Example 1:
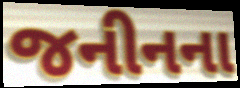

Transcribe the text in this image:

જનીનના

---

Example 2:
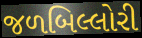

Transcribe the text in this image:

જળબિલ્લોરી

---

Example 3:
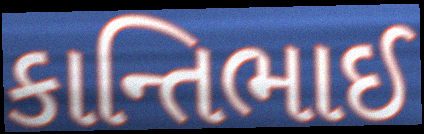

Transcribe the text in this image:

કાન્તિભાઈ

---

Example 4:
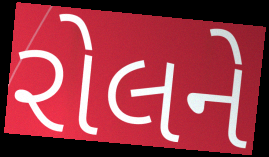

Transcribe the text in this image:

રોલને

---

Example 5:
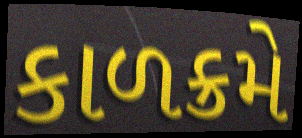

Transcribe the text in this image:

કાળક્રમે